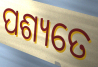
ପଶ୍ୟତେ